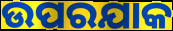
ଉପରଯାକ